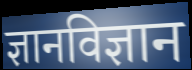
ज्ञानविज्ञान